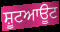
ਸ਼ੂਟਆਊਟ